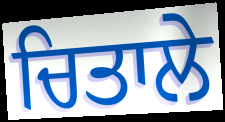
ਚਿਤਾਲੇ